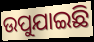
ଉପୁଯାଇଛି